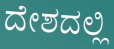
ದೇಶದಲ್ಲಿ